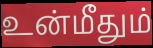
உன்மீதும்